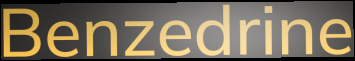
Benzedrine